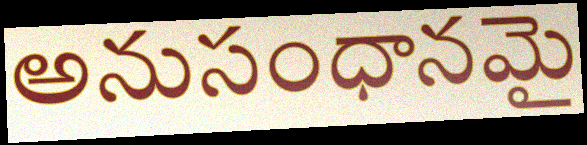
అనుసంధానమై